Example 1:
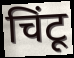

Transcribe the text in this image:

चिंटू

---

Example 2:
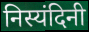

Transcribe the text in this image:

निस्यंदिनी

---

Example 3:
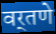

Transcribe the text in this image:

वर्तणे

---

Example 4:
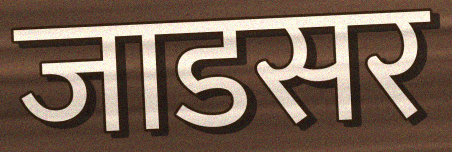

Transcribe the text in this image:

जाडसर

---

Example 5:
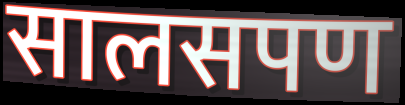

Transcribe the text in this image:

सालसपण